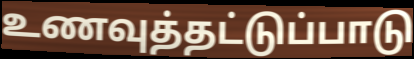
உணவுத்தட்டுப்பாடு